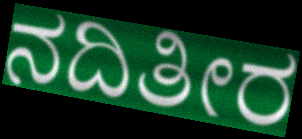
ನದಿತೀರ